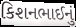
કિશનભાઈનું